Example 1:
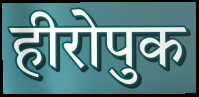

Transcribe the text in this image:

हीरोपुक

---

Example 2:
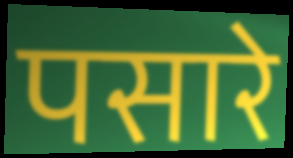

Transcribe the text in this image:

पसारे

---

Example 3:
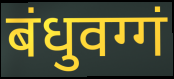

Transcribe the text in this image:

बंधुवग्गं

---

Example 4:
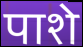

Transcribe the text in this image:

पाशे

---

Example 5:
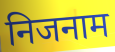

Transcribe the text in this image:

निजनाम